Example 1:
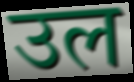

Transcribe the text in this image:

उल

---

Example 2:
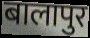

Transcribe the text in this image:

बालापुर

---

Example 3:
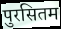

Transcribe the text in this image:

पुरसितम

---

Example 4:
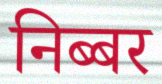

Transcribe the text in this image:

निब्बर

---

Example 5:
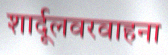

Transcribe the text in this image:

शार्दूलवरवाहना